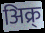
अिक्र्